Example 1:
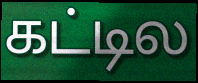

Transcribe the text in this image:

கட்டில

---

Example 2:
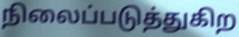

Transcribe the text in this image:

நிலைப்படுத்துகிற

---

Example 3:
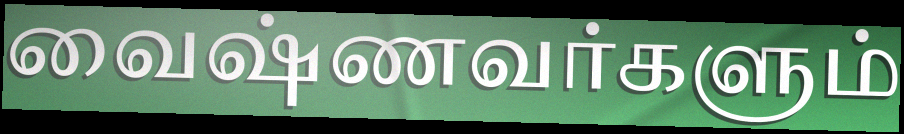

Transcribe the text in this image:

வைஷ்ணவர்களும்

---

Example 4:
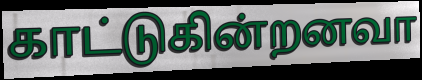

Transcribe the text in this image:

காட்டுகின்றனவா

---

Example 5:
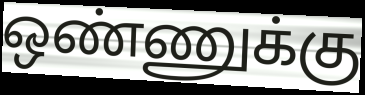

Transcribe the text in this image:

ஒண்ணுக்கு